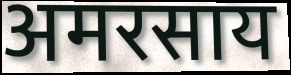
अमरसाय